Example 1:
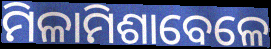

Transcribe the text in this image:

ମିଳାମିଶାବେଳେ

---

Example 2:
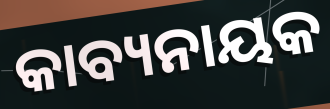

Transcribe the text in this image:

କାବ୍ୟନାୟକ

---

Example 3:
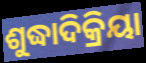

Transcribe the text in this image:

ଶୁଦ୍ଧାଦିକ୍ରିୟା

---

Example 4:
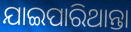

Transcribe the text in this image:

ଯାଇପାରିଥାନ୍ତା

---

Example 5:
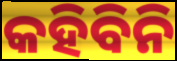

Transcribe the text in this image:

କହିବିନି